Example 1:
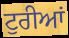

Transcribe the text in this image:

ਟੁਰੀਆਂ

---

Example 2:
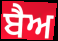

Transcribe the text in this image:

ਬੈਅ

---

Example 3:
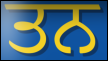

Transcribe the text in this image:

ਤਨ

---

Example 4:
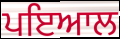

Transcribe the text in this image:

ਪਇਆਲ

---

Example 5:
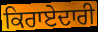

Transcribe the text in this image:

ਕਿਰਾਏਦਾਰੀ